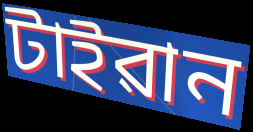
টাইৱান